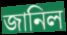
জানিল